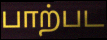
பாற்பட